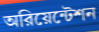
অরিয়েন্টেশন